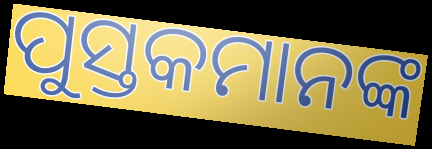
ପୁସ୍ତକମାନଙ୍କ